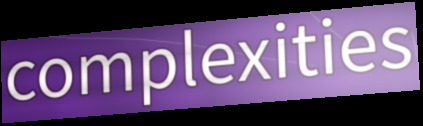
complexities